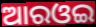
ଆରଓଇ